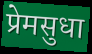
प्रेमसुधा